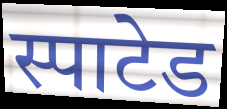
स्पाटेड